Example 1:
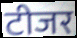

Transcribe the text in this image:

टीजर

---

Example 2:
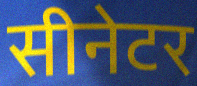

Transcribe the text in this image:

सीनेटर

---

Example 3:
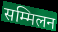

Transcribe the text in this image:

सम्मिलन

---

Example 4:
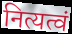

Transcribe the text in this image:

नित्यत्वं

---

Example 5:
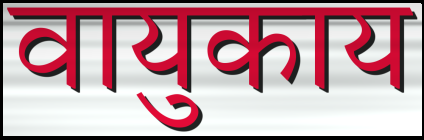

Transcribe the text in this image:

वायुकाय